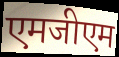
एमजीएम